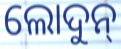
ଲୋଦୁନ୍